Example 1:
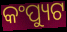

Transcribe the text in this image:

କଂପ୍ୟୁଟ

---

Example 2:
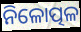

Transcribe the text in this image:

ନିଳୋତ୍ପଳ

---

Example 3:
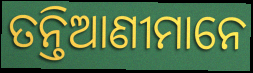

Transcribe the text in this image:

ତନ୍ତିଆଣୀମାନେ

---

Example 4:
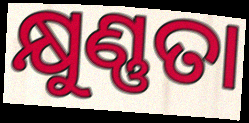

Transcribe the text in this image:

କ୍ଷୁଣ୍ଣତା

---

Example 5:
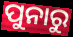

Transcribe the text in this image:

ପୁନାରୁ